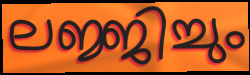
ലജ്ജിച്ചും